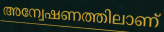
അന്വേഷണത്തിലാണ്